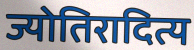
ज्योतिरादित्य